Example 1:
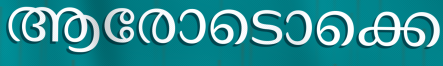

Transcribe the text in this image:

ആരോടൊക്കെ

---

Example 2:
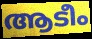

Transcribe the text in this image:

ആടീം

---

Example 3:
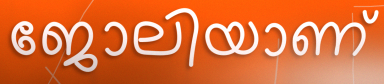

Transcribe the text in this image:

ജോലിയാണ്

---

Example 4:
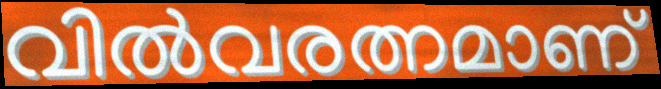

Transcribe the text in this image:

വിൽവരത്നമാണ്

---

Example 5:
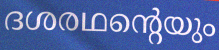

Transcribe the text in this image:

ദശരഥന്റെയും